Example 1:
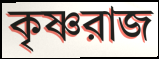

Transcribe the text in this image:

কৃষ্ণরাজ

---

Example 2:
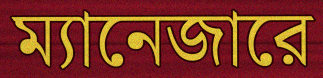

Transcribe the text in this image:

ম্যানেজারে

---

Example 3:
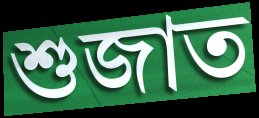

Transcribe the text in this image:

শুজাত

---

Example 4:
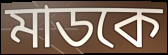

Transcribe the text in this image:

মাডকে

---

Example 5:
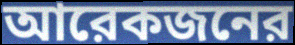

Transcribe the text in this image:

আরেকজনের